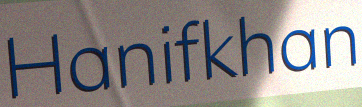
Hanifkhan